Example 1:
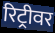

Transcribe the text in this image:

रिट्रीवर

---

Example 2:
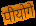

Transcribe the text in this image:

पीयोगे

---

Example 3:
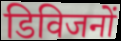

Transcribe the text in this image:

डिविजनों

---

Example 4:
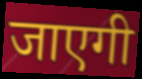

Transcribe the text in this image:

जाएगी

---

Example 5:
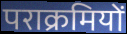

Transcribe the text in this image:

पराक्रमियों